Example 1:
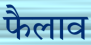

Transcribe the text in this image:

फैलाव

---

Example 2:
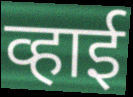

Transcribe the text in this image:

व्हाई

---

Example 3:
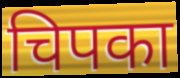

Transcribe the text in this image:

चिपका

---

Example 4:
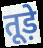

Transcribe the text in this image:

तूड़े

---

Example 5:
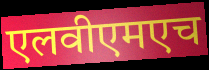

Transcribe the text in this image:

एलवीएमएच